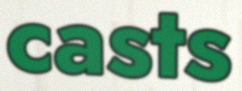
casts